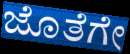
ಜೊತೆಗೇ